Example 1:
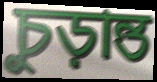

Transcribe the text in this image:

চুড়ান্ত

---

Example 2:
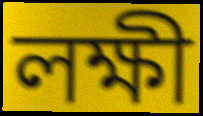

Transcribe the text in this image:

লক্ষী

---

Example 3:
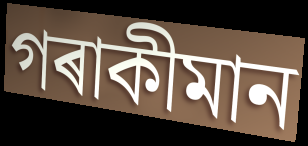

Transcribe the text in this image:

গৰাকীমান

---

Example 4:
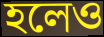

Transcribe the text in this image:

হলেও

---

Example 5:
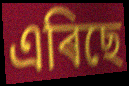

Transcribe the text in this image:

এৰিছে